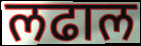
लढाल